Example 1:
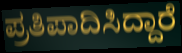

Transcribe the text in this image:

ಪ್ರತಿಪಾದಿಸಿದ್ದಾರೆ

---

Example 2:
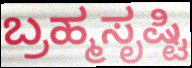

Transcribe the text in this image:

ಬ್ರಹ್ಮಸೃಷ್ಟಿ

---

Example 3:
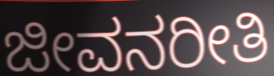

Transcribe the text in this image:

ಜೀವನರೀತಿ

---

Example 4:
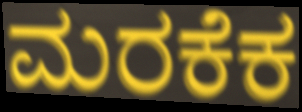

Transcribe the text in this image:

ಮರಕೆಕ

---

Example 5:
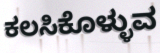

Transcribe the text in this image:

ಕಲಸಿಕೊಳ್ಳುವ